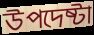
উপদেষ্টা